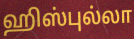
ஹிஸ்புல்லா